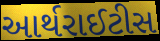
આર્થરાઈટીસ